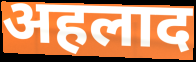
अहलाद